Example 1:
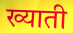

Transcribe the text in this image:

ख्याती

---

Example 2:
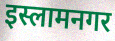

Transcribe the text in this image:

इस्लामनगर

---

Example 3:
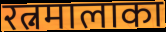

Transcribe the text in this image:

रत्नमालाका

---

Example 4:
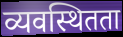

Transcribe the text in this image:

व्यवस्थितता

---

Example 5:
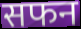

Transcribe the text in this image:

सफन